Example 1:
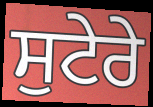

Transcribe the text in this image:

ਸੁਟੇਰੇ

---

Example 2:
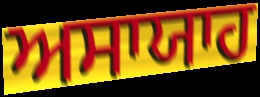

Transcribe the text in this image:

ਅਸਾਯਾਹ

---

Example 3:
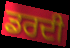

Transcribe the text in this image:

ਡਰਦੀ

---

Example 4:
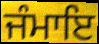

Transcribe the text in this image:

ਜੰਮਾਇ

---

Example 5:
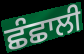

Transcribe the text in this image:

ਛੰਛਾਲੀ